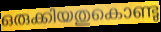
ഒരുക്കിയതുകൊണ്ടു